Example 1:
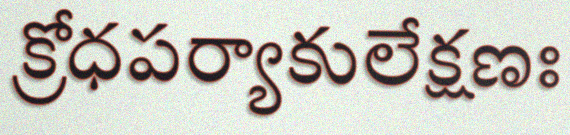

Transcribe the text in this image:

క్రోధపర్యాకులేక్షణః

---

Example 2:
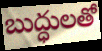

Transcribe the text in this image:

బుద్ధులతో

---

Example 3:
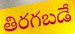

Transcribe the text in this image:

తిరగబడే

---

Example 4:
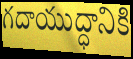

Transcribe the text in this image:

గదాయుద్ధానికి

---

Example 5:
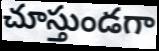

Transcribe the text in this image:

చూస్తుండగా